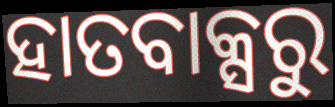
ହାତବାକ୍ସରୁ